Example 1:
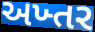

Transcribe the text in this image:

અખ્તર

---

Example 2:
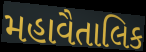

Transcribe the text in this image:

મહાવૈતાલિક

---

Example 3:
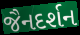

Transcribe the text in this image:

જૈનદર્શન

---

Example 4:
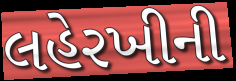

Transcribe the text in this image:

લહેરખીની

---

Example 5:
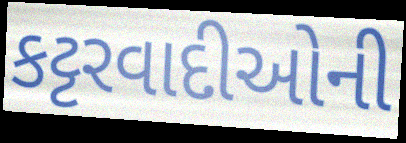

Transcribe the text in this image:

કટ્ટરવાદીઓની